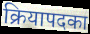
क्रियापदका